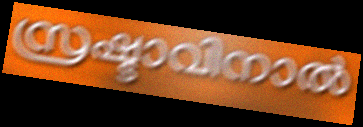
സ്രഷ്ടാവിനാൽ